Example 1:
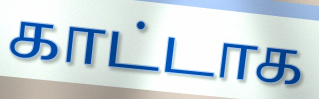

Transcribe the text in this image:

காட்டாக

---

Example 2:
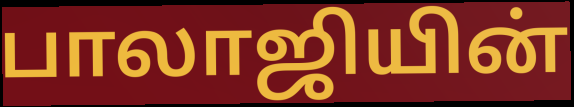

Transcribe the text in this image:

பாலாஜியின்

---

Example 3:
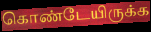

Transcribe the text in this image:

கொண்டேயிருக்க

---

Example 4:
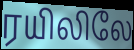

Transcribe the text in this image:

ரயிலிலே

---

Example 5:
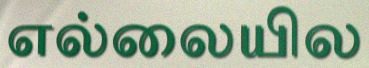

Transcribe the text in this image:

எல்லையில